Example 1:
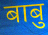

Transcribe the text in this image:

बाबु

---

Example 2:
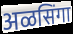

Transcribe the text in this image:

अळसिंगा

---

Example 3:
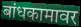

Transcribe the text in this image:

बांधकामावर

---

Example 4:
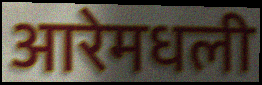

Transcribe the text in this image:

आरेमधली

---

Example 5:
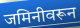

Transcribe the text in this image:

जमिनीवरून